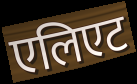
एलिएट